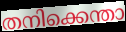
തനിക്കെന്താ